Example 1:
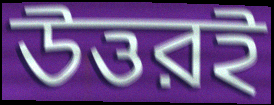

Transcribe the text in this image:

উত্তরই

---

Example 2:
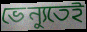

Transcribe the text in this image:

ভেন্যুতেই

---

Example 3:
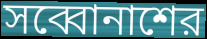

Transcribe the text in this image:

সব্বোনাশের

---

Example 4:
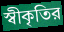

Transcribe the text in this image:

স্বীকৃতির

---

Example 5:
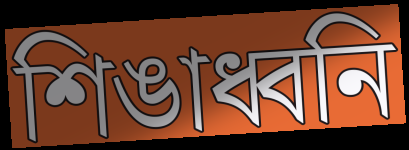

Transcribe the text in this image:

শিঙাধ্বনি